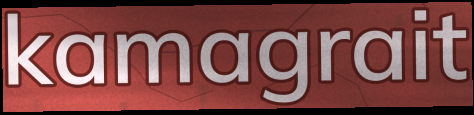
kamagrait